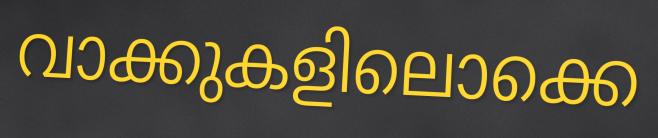
വാക്കുകളിലൊക്കെ